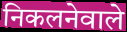
निकलनेवाले